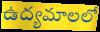
ఉద్యమాలలో